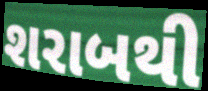
શરાબથી